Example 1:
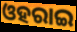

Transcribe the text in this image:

ଓହରାଇ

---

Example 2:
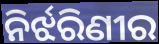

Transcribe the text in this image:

ନିର୍ଝରିଣୀର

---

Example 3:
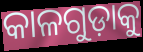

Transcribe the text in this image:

କାଳଗୁଡ଼ାକୁ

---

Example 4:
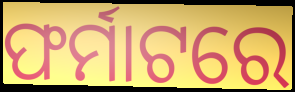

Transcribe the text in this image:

ଫର୍ମାଟରେ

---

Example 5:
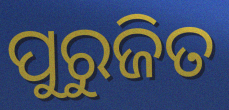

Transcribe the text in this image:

ପୁରୁଜିତ